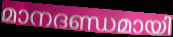
മാനദണ്ഡമായി